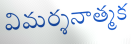
విమర్శనాత్మక